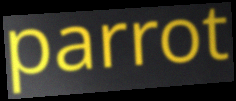
parrot